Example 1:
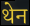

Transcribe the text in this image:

थेन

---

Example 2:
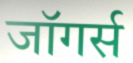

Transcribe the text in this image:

जॉगर्स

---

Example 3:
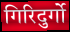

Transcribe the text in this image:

गिरिदुर्गो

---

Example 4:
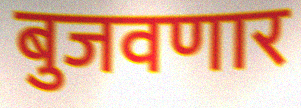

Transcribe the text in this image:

बुजवणार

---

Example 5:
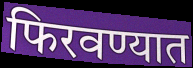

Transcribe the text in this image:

फिरवण्यात